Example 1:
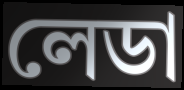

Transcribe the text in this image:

লেডা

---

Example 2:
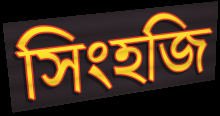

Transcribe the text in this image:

সিংহজি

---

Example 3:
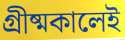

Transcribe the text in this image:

গ্রীষ্মকালেই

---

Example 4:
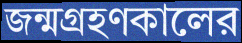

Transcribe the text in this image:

জন্মগ্রহণকালের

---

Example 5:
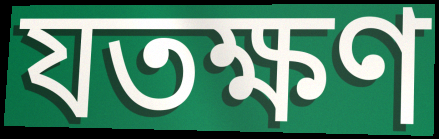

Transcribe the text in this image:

যতক্ষণ